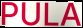
PULA